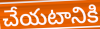
చేయటానికి